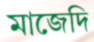
মাজেদি